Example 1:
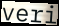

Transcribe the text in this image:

veri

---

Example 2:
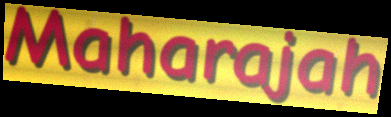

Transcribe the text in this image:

Maharajah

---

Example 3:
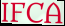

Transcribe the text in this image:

IFCA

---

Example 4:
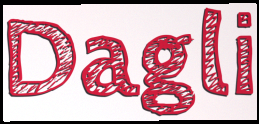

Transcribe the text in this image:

Dagli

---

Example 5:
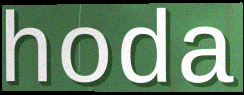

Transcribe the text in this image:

hoda